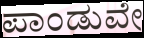
ಪಾಂಡುವೇ